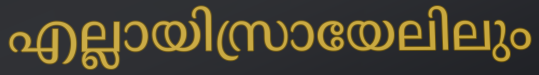
എല്ലായിസ്രായേലിലും